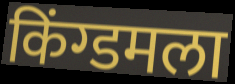
किंग्डमला